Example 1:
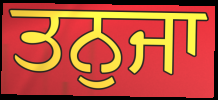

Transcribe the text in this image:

ਤਨੁਜਾ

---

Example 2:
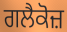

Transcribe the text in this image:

ਗਲੈਕੋਜ਼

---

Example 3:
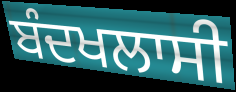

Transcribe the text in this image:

ਬੰਦਖਲਾਸੀ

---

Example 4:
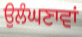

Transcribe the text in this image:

ਉਲੰਘਣਾਵਾਂ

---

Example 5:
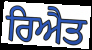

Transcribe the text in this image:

ਰਿਐਤ